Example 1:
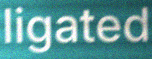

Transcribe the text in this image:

ligated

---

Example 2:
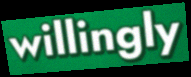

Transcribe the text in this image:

willingly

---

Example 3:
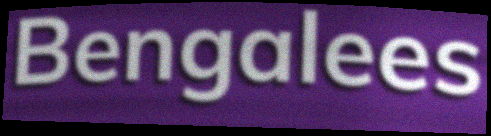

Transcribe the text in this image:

Bengalees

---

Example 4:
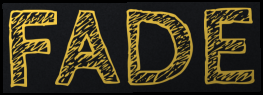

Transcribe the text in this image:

FADE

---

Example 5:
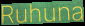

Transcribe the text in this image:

Ruhuna